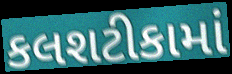
કલશટીકામાં